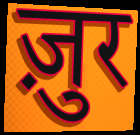
ज़ुर